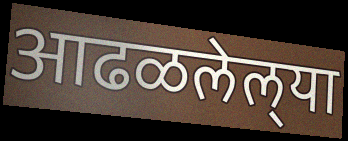
आढळलेल्या